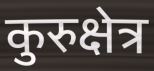
कुरुक्षेत्र